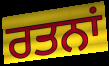
ਰਤਨਾਂ